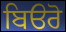
ਬਿੳਰੋ